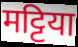
मट्टिया